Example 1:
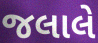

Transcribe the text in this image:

જલાલે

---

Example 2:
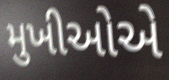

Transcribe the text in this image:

મુખીઓએ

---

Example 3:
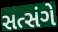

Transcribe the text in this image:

સત્સંગે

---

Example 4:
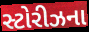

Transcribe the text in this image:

સ્ટોરીઝના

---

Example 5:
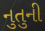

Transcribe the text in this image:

નુતુની